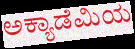
ಅಕ್ಯಾಡೆಮಿಯ